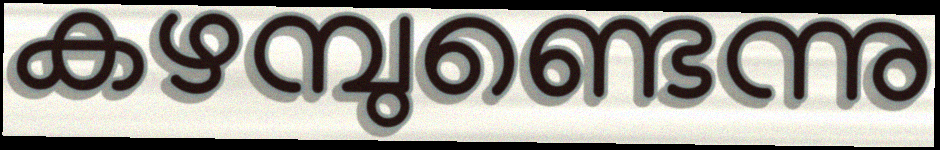
കഴമ്പുണ്ടെന്നു